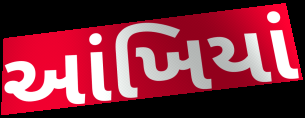
આંખિયાં